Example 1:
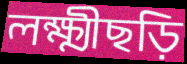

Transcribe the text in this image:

লক্ষ্মীছড়ি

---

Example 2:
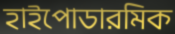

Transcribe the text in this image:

হাইপোডারমিক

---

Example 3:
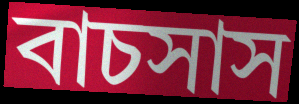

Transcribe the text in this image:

বাচসাস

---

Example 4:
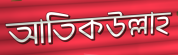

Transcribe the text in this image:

আতিকউল্লাহ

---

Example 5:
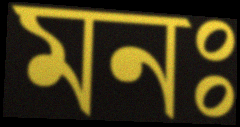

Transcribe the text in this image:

মনঃ